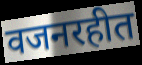
वजनरहीत